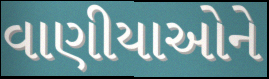
વાણીયાઓને